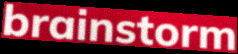
brainstorm